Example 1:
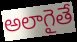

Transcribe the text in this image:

అలాగైతే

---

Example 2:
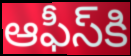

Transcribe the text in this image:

ఆఫీస్‌కి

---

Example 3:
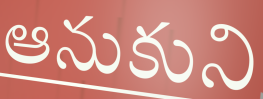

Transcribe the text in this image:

ఆనుకుని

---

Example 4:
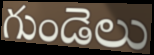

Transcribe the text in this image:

గుండెలు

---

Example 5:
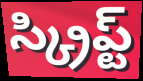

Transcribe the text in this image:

స్క్రిప్ట్